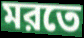
মরতে